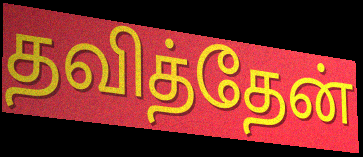
தவித்தேன்